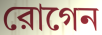
রোগেন